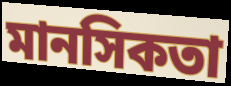
মানসিকতা